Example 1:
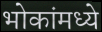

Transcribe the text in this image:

भोकांमध्ये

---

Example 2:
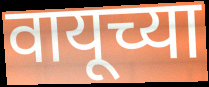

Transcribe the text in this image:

वायूच्या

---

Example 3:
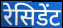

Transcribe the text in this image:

रेसिडेंट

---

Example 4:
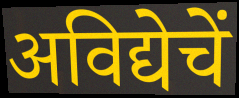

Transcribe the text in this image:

अविद्येचें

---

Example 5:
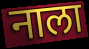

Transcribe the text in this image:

नाला